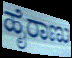
ಹೈರಾಣು